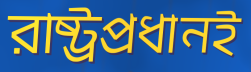
রাষ্ট্রপ্রধানই